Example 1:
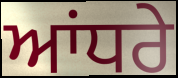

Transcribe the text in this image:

ਆਂਧਰੇ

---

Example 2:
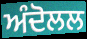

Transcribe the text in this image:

ਅੰਦੋਲਲ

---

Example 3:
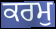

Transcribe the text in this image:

ਕਰਮੁ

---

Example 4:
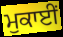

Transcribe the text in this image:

ਮੁਕਾਈਂ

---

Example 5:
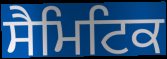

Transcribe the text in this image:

ਸੈਮਿਟਿਕ